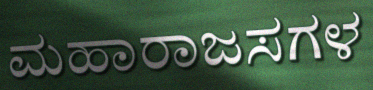
ಮಹಾರಾಜಸಗಳ